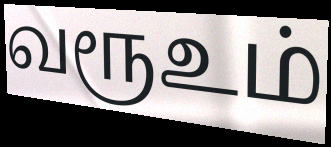
வரூஉம்